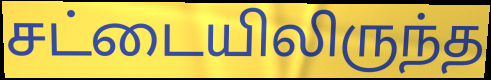
சட்டையிலிருந்த